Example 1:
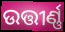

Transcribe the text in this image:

ଉତ୍ତୀର୍ଣ୍ଣ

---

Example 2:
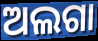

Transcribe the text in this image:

ଅଲଗା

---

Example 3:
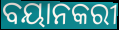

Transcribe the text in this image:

ବୟାନକରୀ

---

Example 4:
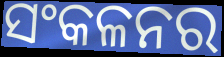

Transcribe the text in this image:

ସଂକଳନର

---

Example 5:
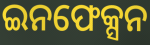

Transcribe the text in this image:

ଇନଫେକ୍ସନ